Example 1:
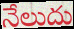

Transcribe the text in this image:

నేలుదు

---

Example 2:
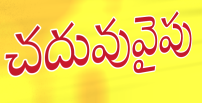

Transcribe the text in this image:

చదువువైపు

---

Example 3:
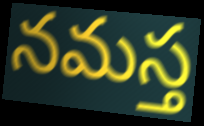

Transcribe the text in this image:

నమస్త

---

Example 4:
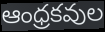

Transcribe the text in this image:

ఆంధ్రకవుల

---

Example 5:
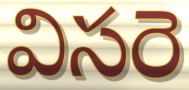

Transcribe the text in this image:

విసరె